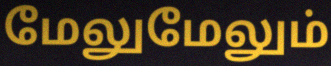
மேலுமேலும்